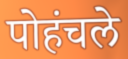
पोहंचले